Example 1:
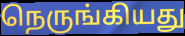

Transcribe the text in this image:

நெருங்கியது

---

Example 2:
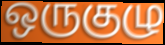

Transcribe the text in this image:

ஒருகுழு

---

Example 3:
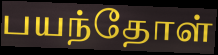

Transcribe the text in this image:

பயந்தோள்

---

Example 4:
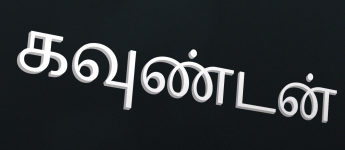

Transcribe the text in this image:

கவுண்டன்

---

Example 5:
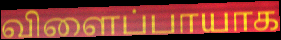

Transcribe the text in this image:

விளைப்பாயாக